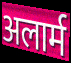
अलार्म